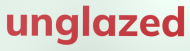
unglazed